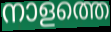
നാളത്തെ